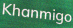
Khanmigo